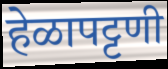
हेळापट्टणी